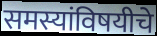
समस्यांविषयीचे